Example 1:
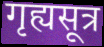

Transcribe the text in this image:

गृह्यसूत्र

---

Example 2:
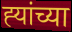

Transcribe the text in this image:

ह्‍यांच्या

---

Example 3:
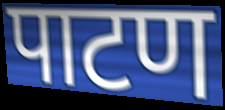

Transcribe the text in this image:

पाटण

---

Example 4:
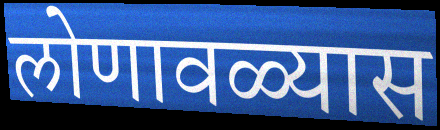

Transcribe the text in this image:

लोणावळ्यास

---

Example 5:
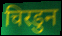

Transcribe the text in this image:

चिरडुन